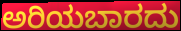
ಅರಿಯಬಾರದು